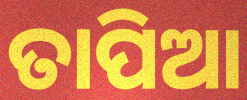
ତାପିଆ